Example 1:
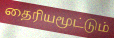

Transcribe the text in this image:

தைரியமூட்டும்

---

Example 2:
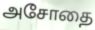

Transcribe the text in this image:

அசோதை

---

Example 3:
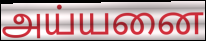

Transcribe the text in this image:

அய்யனை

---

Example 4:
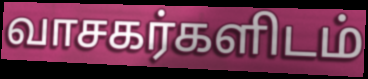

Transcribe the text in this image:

வாசகர்களிடம்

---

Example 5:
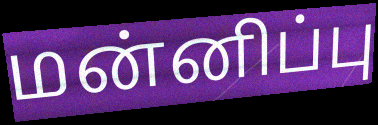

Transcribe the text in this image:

மன்னிப்பு